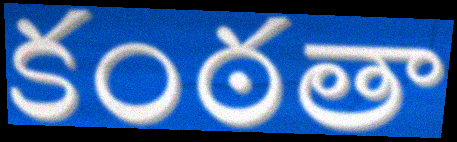
కంఠతా